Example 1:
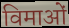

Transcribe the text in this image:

विमाओं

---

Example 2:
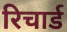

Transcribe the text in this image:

रिचार्ड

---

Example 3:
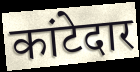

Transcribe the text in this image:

कांटेदार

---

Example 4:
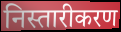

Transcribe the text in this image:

निस्तारीकरण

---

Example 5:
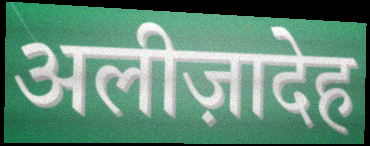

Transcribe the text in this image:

अलीज़ादेह